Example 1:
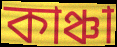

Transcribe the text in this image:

কাঞ্চা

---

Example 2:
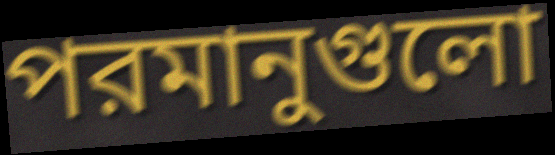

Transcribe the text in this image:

পরমানুগুলো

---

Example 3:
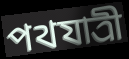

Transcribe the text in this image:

পথযাত্রী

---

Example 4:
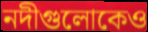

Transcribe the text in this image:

নদীগুলোকেও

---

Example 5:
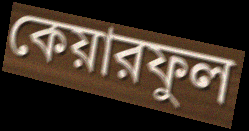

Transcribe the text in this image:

কেয়ারফুল